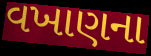
વખાણના